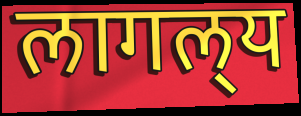
लागल्य